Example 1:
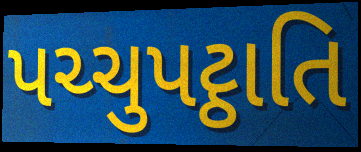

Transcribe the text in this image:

પચ્ચુપટ્ઠાતિ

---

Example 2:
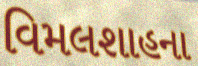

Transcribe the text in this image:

વિમલશાહના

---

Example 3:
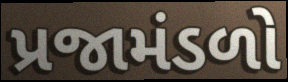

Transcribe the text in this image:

પ્રજામંડળો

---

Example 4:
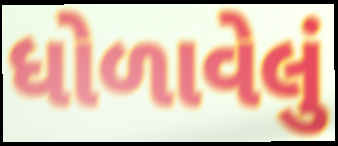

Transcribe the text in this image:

ધોળાવેલું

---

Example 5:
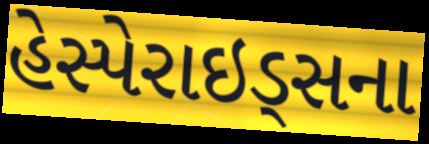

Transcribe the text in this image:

હેસ્પેરાઇડ્સના